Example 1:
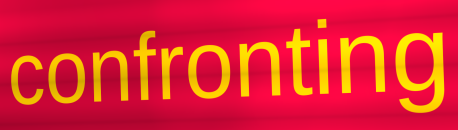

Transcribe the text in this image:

confronting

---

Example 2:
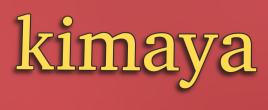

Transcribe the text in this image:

kimaya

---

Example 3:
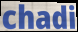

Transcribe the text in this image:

chadi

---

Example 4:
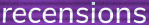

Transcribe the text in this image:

recensions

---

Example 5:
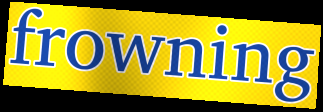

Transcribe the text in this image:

frowning